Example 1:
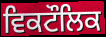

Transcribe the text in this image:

ਵਿਕਟੌਲਿਕ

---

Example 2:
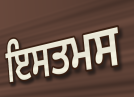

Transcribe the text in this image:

ਇਸਤਮਸ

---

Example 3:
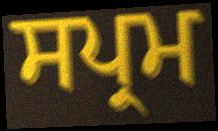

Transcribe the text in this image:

ਸਪ੍ਰਮ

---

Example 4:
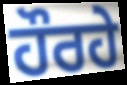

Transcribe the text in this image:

ਹੌਰਹੇ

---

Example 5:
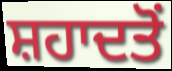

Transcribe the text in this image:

ਸ਼ਹਾਦਤੋਂ